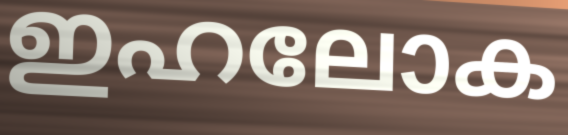
ഇഹലോക